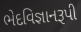
ભેદવિજ્ઞાનરૂપી